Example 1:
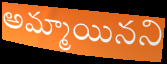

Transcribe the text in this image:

అమ్మాయినని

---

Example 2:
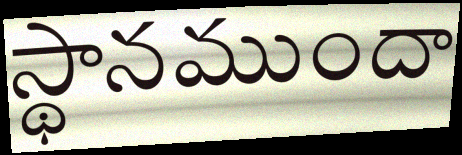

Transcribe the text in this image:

స్థానముందా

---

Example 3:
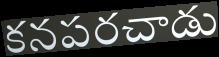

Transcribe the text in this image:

కనపరచాడు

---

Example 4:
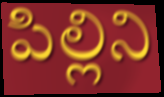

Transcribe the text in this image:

పిల్లిని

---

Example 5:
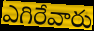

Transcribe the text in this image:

ఎగిరేవారు